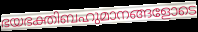
ഭയഭക്തിബഹുമാനങ്ങളോടെ